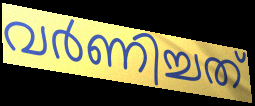
വർണിച്ചത്